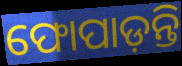
ଫୋପାଡ଼ନ୍ତି